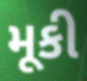
મૂકી